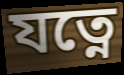
যত্নে